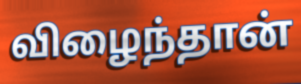
விழைந்தான்